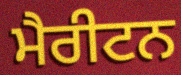
ਮੈਰੀਟਨ